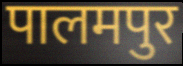
पालमपुर